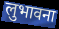
लुभावना